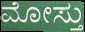
ಮೋಸ್ತು